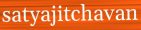
satyajitchavan